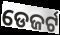
ଡେଜର୍ଟ